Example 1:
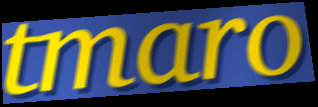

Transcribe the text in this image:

tmaro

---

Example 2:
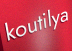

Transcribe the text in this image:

koutilya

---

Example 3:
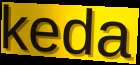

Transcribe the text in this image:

keda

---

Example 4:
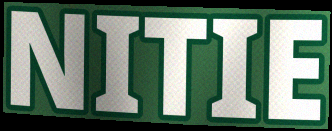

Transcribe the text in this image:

NITIE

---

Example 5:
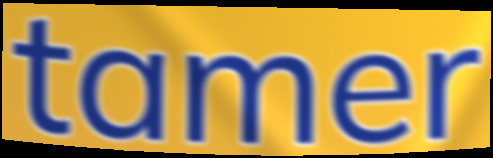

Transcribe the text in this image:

tamer